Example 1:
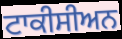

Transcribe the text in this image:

ਟਾਕੀਸੀਅਨ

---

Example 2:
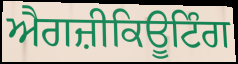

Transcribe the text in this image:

ਐਗਜ਼ੀਕਿਊਟਿੰਗ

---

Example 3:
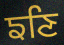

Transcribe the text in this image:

ਙਣਿ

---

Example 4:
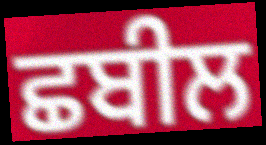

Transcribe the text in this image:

ਛਬੀਲ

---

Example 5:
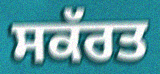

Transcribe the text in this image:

ਸਕੱਰਤ